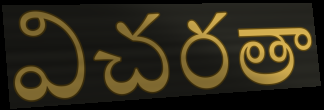
విచరతా